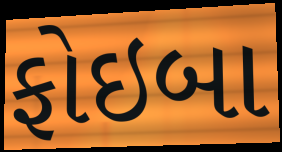
ફોઇબા